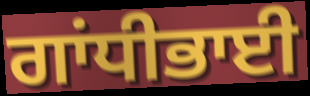
ਗਾਂਧੀਭਾਈ